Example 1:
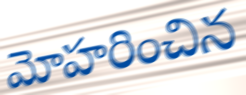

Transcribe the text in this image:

మోహరించిన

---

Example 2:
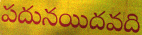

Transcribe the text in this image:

పదునయిదవది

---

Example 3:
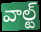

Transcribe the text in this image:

వాల్ట్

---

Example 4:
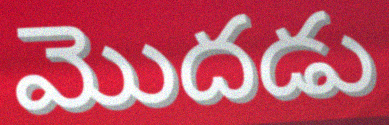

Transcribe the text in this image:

మొదడు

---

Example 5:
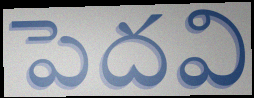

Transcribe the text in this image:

పెదవి